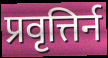
प्रवृत्तिर्न